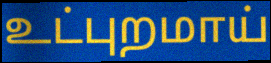
உட்புறமாய்